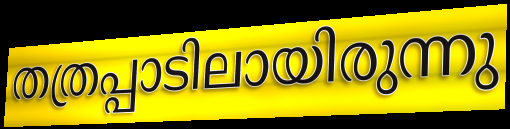
തത്രപ്പാടിലായിരുന്നു